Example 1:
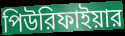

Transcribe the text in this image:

পিউরিফাইয়ার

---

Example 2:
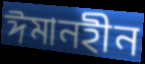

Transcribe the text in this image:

ঈমানহীন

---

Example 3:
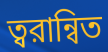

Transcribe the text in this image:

ত্বরান্বিত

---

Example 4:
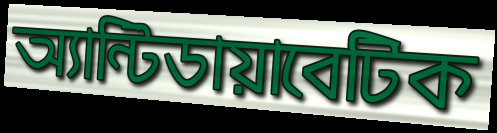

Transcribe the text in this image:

অ্যান্টিডায়াবেটিক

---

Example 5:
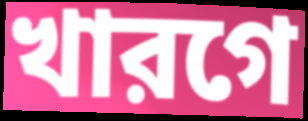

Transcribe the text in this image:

খারগে